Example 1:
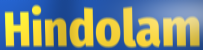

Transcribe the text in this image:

Hindolam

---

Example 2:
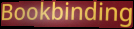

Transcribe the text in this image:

Bookbinding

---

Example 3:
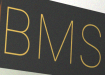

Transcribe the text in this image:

BMS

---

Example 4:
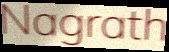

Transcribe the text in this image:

Nagrath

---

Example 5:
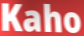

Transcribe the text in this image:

Kaho